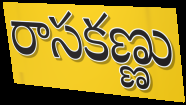
రాసకణ్ణు